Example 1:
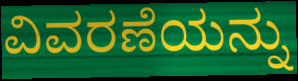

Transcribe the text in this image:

ವಿವರಣೆಯನ್ನು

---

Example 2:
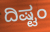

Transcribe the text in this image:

ದಿಷ್ಟಂ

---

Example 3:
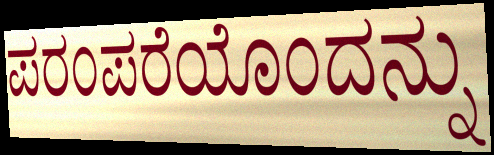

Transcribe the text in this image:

ಪರಂಪರೆಯೊಂದನ್ನು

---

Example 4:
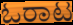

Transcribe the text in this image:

ಓರಾಟ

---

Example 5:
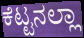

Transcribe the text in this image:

ಕೆಟ್ಟನಲ್ಲಾ